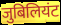
जुबिलियंट